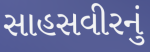
સાહસવીરનું